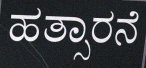
ಹತ್ಸಾರನೆ